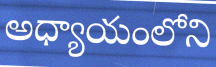
అధ్యాయంలోని